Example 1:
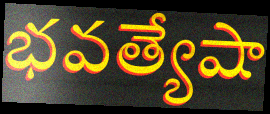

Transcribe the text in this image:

భవత్యేషా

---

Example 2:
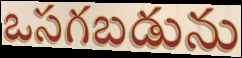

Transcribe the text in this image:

ఒసగబడును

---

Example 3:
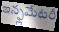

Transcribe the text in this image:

ఇన్ఫ్లమేటరీ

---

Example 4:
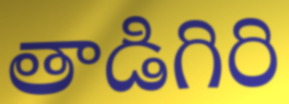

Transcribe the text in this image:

తాడిగిరి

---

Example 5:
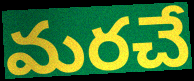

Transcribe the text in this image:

మరచే